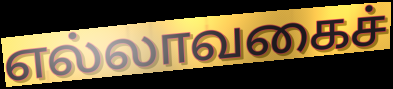
எல்லாவகைச்